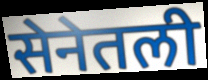
सेनेतली